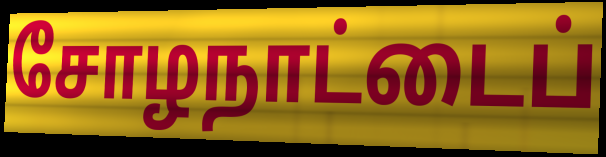
சோழநாட்டைப்